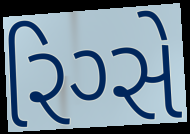
રિગ્સે